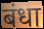
बंधा